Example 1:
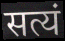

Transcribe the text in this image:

सत्यं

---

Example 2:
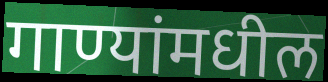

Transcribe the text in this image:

गाण्यांमधील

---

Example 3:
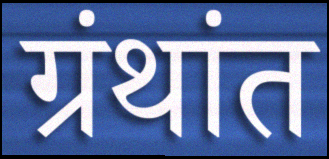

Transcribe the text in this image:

ग्रंथांत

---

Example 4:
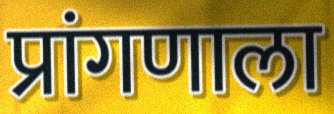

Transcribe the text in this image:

प्रांगणाला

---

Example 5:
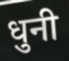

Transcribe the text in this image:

धुनी